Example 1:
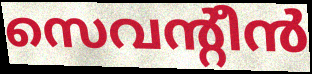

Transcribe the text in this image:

സെവന്റീൻ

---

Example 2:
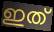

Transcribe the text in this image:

ഇത്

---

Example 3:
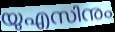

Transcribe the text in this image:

യുഎസിനും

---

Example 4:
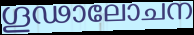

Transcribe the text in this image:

ഗൂഢാലോചന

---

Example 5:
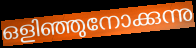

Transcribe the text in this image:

ഒളിഞ്ഞുനോക്കുന്നു